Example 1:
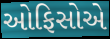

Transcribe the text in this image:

ઓફિસોએ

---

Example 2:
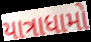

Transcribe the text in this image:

યાત્રાધામો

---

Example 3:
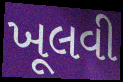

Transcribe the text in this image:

ખૂલવી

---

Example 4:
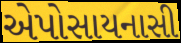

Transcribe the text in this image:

એપોસાયનાસી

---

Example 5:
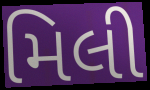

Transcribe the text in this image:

મિલી